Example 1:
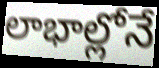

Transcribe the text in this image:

లాభాల్లోనే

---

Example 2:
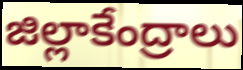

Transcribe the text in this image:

జిల్లాకేంద్రాలు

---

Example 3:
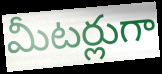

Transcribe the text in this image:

మీటర్లుగా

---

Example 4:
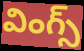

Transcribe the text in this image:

వింగ్స్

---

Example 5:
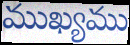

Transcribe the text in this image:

ముఖ్యము